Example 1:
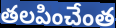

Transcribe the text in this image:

తలపించేంత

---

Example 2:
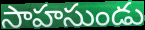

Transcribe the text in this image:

సాహసుండు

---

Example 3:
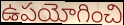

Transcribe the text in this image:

ఉపయోగించి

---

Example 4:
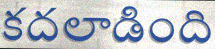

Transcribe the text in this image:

కదలాడింది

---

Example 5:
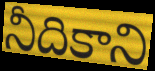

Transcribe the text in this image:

నీదికాని